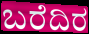
ಬರೆದಿರ